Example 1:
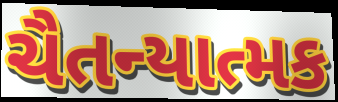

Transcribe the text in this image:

ચૈતન્યાત્મક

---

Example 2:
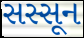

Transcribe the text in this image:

સસ્સૂન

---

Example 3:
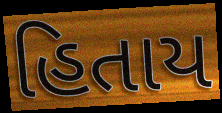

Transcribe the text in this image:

હિતાય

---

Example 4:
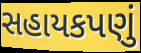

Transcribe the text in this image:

સહાયકપણું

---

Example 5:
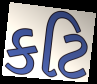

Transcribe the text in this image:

કટિ